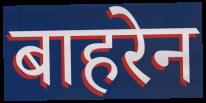
बाहरेन